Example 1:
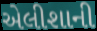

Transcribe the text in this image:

એલીશાની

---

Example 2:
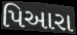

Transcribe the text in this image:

પિઆરા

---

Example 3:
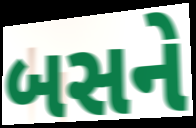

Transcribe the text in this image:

બસને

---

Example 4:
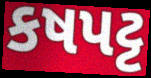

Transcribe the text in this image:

કષપટ્ટ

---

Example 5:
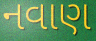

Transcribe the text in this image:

નવાણ